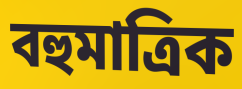
বহুমাত্ৰিক